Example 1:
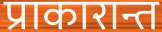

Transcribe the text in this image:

प्राकारान्त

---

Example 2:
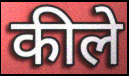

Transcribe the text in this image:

कीले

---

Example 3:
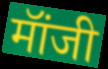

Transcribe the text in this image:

मॉंजी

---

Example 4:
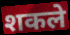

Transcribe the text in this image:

शकले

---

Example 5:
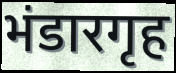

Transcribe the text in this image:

भंडारगृह